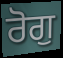
ਰੋਗੁ